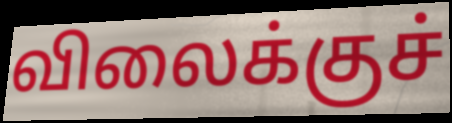
விலைக்குச்